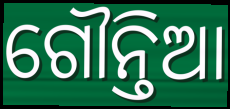
ଗୌନ୍ତିଆ